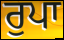
ਰੁਪਾ